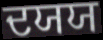
ਦਯਯ